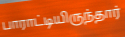
பாராட்டியிருந்தார்